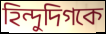
হিন্দুদিগকে